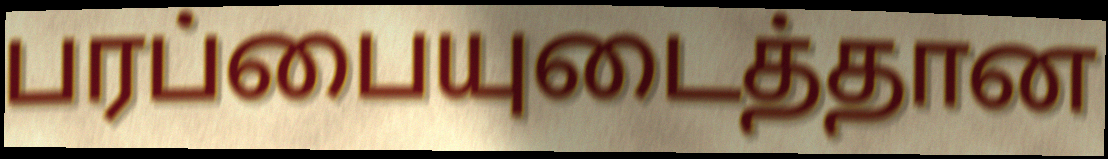
பரப்பையுடைத்தான